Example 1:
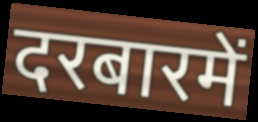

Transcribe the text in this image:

दरबारमें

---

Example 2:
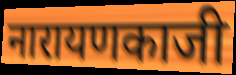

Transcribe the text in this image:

नारायणकाजी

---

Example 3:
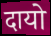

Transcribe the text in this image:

दायो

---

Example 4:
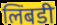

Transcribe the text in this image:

लिंबडी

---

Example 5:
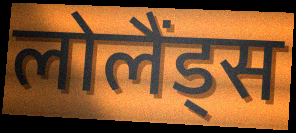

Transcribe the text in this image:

लोलैंड्स